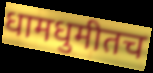
धामधुमीतच